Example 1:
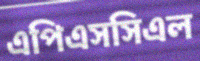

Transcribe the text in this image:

এপিএসসিএল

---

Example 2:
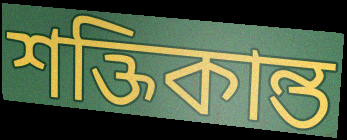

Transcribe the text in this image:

শক্তিকান্ত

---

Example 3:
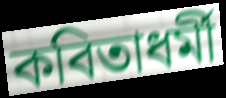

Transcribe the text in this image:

কবিতাধর্মী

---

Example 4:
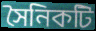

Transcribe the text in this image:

সৈনিকটি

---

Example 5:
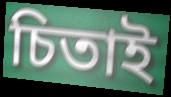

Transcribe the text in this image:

চিতাই